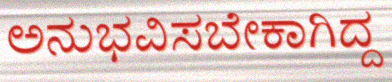
ಅನುಭವಿಸಬೇಕಾಗಿದ್ದ